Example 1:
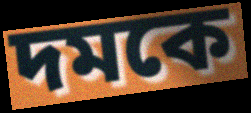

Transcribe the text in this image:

দমকে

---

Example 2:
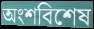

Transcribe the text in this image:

অংশবিশেষ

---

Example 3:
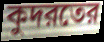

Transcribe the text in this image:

কুদরতের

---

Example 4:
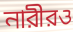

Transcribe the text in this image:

নারীরও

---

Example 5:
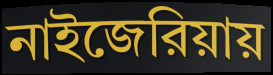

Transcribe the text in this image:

নাইজেরিয়ায়